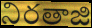
నిరతాజి